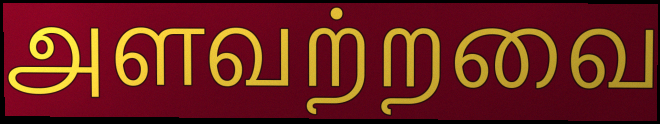
அளவற்றவை